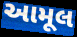
આમૂલ